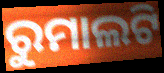
ରୁମାଲଟି